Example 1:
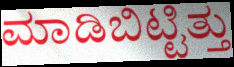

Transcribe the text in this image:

ಮಾಡಿಬಿಟ್ಟಿತ್ತು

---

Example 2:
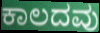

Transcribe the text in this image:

ಕಾಲದವು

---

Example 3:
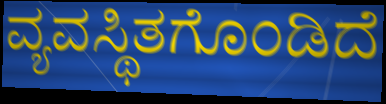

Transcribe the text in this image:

ವ್ಯವಸ್ಥಿತಗೊಂಡಿದೆ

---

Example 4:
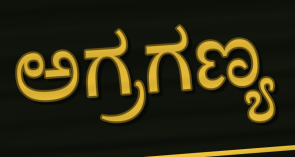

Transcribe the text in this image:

ಅಗ್ರಗಣ್ಯ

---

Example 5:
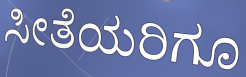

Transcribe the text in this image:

ಸೀತೆಯರಿಗೂ